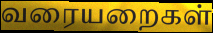
வரையறைகள்